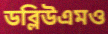
ডব্লিউএমও